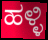
ಹಳ್ಳಿ